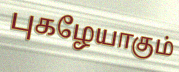
புகழேயாகும்